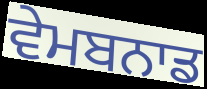
ਵੇਮਬਨਾਡ